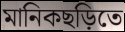
মানিকছড়িতে